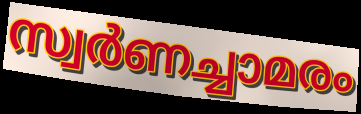
സ്വർണച്ചാമരം